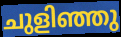
ചുളിഞ്ഞു